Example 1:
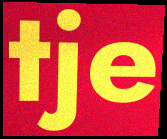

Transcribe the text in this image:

tje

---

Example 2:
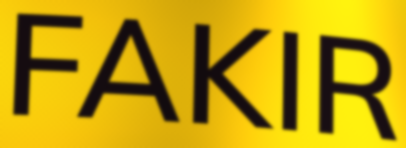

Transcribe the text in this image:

FAKIR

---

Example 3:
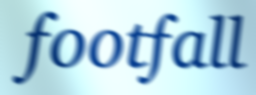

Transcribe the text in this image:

footfall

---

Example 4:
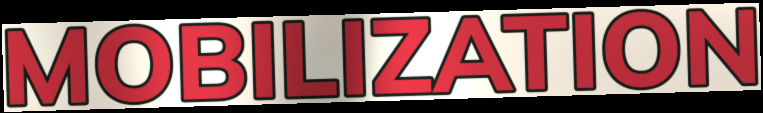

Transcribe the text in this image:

MOBILIZATION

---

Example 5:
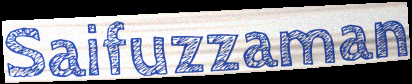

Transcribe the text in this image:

Saifuzzaman